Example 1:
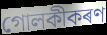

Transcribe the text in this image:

গোলকীকৰণ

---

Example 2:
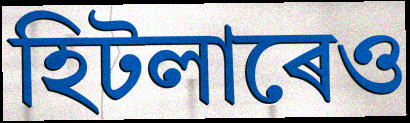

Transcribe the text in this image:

হিটলাৰেও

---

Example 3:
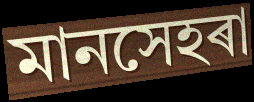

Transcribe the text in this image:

মানসেহৰা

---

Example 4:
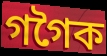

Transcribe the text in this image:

গগৈক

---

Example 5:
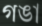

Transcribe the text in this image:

গঙা